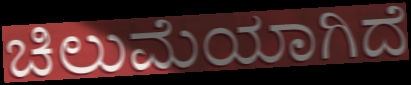
ಚಿಲುಮೆಯಾಗಿದೆ